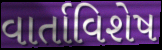
વાર્તાવિશેષ